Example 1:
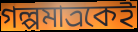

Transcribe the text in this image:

গল্পমাত্রকেই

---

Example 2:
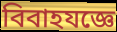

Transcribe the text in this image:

বিবাহযজ্ঞে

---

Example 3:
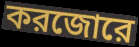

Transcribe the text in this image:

করজোরে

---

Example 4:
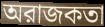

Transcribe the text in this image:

অরাজকতা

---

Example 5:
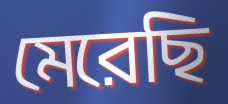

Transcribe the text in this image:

মেরেছি